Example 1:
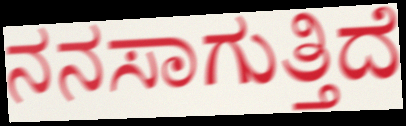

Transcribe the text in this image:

ನನಸಾಗುತ್ತಿದೆ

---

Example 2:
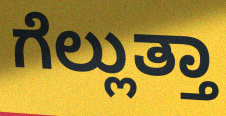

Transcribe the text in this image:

ಗೆಲ್ಲುತ್ತಾ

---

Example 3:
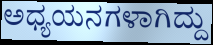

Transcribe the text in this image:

ಅಧ್ಯಯನಗಳಾಗಿದ್ದು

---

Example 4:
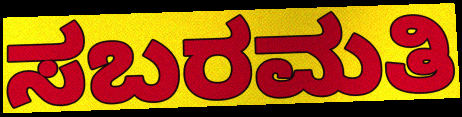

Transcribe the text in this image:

ಸಬರಮತಿ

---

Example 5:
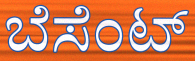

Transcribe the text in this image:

ಬೆಸೆಂಟ್